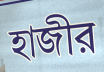
হাজীর